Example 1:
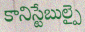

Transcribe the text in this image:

కానిస్టేబుల్పై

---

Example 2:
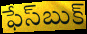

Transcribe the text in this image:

ఫేస్‌బుక్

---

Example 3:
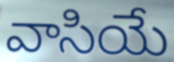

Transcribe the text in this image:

వాసియే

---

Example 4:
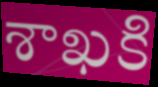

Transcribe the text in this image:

శాఖకి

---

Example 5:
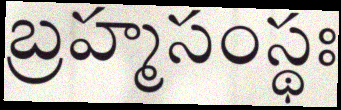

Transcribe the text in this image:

బ్రహ్మసంస్థః